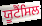
ਯੂਟੈਂਸਿਲ